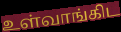
உள்வாங்கிட